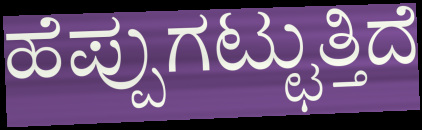
ಹೆಪ್ಪುಗಟ್ಟುತ್ತಿದೆ